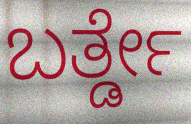
ಬರ್ತ್ಡೇ